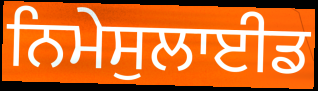
ਨਿਮੇਸੁਲਾਈਡ